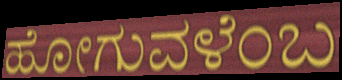
ಹೋಗುವಳೆಂಬ